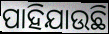
ପାହିଯାଉଛି